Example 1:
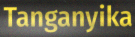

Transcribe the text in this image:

Tanganyika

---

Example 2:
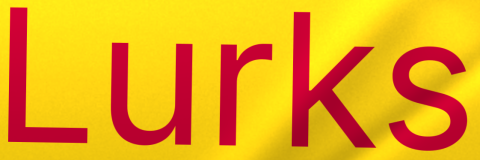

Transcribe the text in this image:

Lurks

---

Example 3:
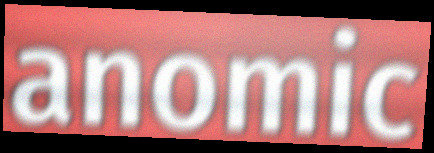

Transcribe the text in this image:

anomic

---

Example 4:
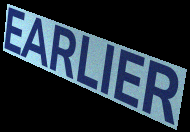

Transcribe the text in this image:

EARLIER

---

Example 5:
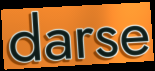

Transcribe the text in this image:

darse